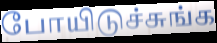
போயிடுச்சுங்க